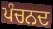
ਪੰਚਨਦ